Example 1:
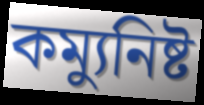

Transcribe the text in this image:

কম্যুনিষ্ট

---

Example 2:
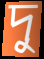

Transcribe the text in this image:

দু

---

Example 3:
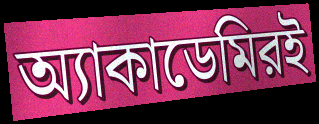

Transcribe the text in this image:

অ্যাকাডেমিরই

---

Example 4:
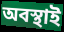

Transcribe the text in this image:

অবস্থাই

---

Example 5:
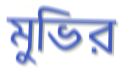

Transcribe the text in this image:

মুভির